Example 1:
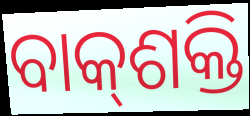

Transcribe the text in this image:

ବାକ୍‌ଶକ୍ତି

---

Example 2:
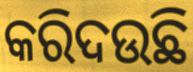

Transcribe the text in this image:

କରିଦଉଛି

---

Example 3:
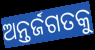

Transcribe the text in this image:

ଅନ୍ତର୍ଜଗତକୁ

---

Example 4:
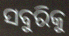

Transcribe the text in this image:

ସବୁରିକୁ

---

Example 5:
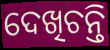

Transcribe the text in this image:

ଦେଖିଚନ୍ତି